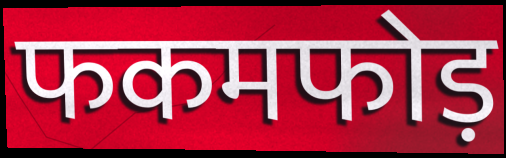
फकमफोड़